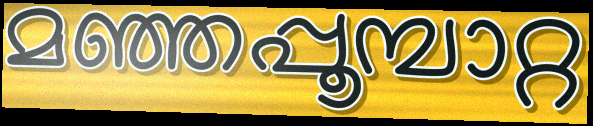
മഞ്ഞപ്പൂമ്പാറ്റ